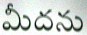
మీదను